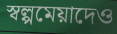
স্বল্পমেয়াদেও